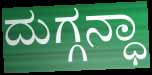
ದುಗ್ಗನ್ಧಾ